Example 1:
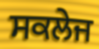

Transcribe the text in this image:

ਸਕਲੇਜ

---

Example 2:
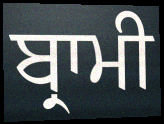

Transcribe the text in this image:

ਬ੍ਰਾਮੀ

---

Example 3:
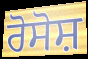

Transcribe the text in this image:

ਰੋਸੋਸ਼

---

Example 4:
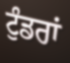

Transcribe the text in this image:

ਟੁੰਡਰਾਂ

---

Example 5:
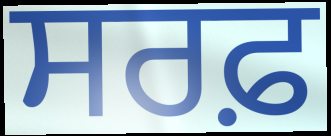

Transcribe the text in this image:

ਸਰਫ਼